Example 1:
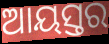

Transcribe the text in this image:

ଆୟସ୍ତର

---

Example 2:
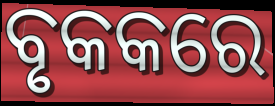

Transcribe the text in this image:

ବୃକକରେ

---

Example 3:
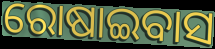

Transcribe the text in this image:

ରୋଷାଇବାସ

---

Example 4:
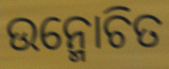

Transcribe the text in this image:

ଉନ୍ମୋଚିତ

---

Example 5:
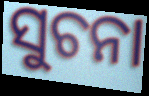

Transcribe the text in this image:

ସୁଚନା